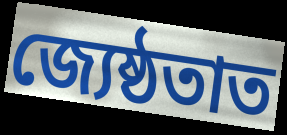
জ্যেষ্ঠতাত